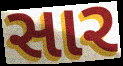
સાર